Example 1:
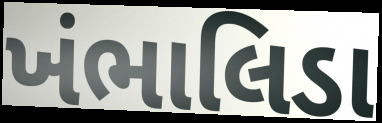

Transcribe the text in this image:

ખંભાલિડા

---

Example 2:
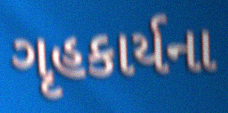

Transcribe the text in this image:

ગૃહકાર્યના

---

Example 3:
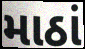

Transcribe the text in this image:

માઠાં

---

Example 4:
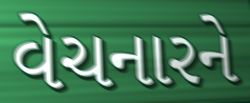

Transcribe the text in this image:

વેચનારને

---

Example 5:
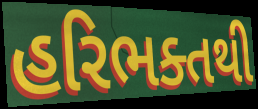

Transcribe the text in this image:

હરિભક્તથી